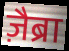
ज़ैब्रा